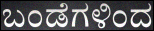
ಬಂಡೆಗಳಿಂದ